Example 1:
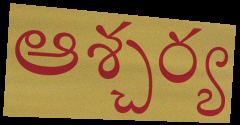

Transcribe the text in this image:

ఆశ్చర్య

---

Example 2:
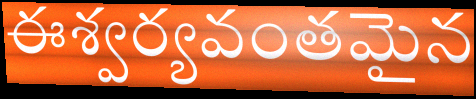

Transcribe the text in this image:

ఈశ్వర్యవంతమైన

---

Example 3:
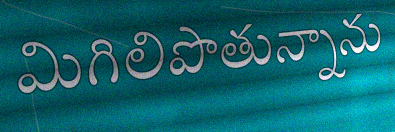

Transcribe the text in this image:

మిగిలిపొతున్నాను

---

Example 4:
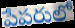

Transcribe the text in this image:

పేపరులో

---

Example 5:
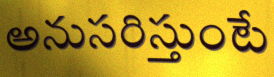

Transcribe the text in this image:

అనుసరిస్తుంటే